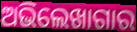
ଅଭିଲେଖାଗାର